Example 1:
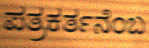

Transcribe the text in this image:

ಪತ್ರಕರ್ತನೆಂಬ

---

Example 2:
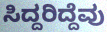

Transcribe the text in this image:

ಸಿದ್ದರಿದ್ದೆವು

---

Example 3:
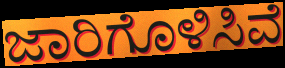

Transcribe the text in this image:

ಜಾರಿಗೊಳಿಸಿವೆ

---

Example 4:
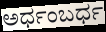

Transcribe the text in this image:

ಅರ್ಧಂಬರ್ಧ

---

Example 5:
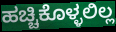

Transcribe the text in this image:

ಹಚ್ಚಿಕೊಳ್ಳಲಿಲ್ಲ